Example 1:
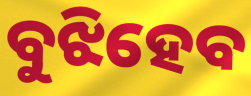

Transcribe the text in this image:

ବୁଝିହେବ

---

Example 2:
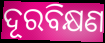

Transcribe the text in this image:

ଦୂରବିକ୍ଷଣ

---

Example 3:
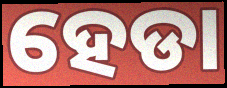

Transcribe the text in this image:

ହେଡା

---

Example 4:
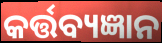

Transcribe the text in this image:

କର୍ତ୍ତବ୍ୟଜ୍ଞାନ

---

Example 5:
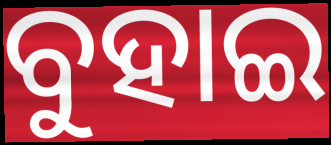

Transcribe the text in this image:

ବୁହାଇ